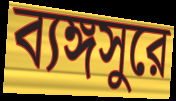
ব্যঙ্গসুরে